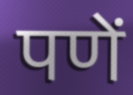
पणें